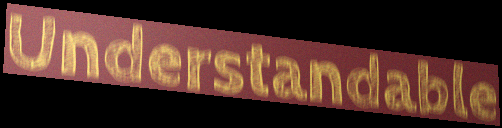
Understandable